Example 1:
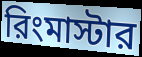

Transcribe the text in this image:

রিংমাস্টার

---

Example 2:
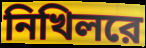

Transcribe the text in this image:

নিখিলরে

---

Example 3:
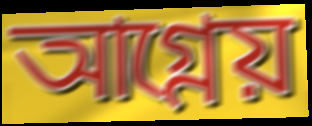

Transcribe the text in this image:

আগ্নেয়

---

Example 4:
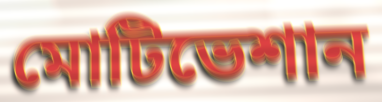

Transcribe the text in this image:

মোটিভেশান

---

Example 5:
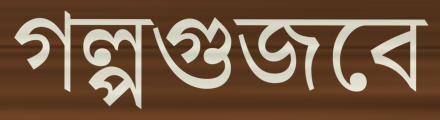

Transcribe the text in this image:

গল্পগুজবে